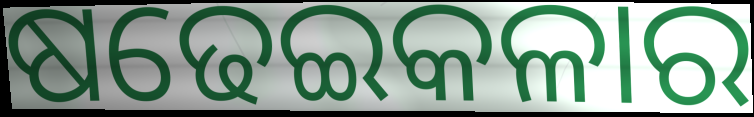
ଷଢେଇକଳାର